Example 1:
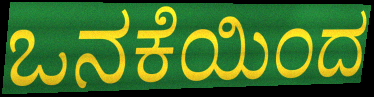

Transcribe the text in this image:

ಒನಕೆಯಿಂದ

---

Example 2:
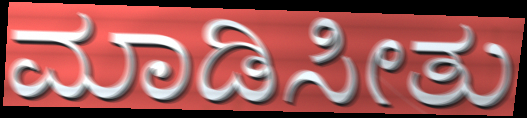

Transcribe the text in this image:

ಮಾಡಿಸೀತು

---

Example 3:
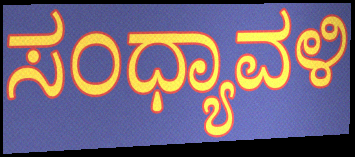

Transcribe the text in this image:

ಸಂಧ್ಯಾವಳಿ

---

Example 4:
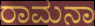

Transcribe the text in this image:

ರಾಮನಾ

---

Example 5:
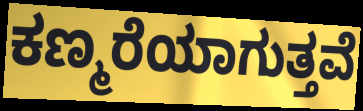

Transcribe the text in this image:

ಕಣ್ಮರೆಯಾಗುತ್ತವೆ